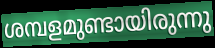
ശമ്പളമുണ്ടായിരുന്നു